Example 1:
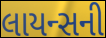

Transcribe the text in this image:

લાયન્સની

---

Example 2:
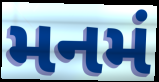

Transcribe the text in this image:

મનમં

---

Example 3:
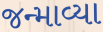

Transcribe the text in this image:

જન્માવ્યા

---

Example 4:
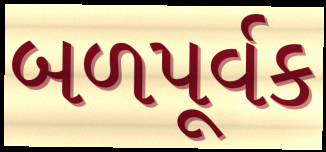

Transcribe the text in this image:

બળપૂર્વક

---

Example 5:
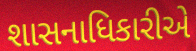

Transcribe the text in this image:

શાસનાધિકારીએ